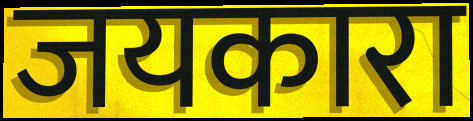
जयकारा